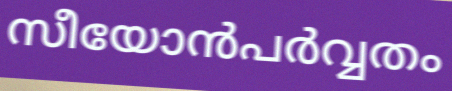
സീയോൻപർവ്വതം